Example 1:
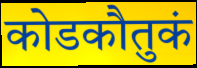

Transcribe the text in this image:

कोडकौतुकं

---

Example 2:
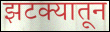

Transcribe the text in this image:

झटक्यातून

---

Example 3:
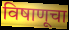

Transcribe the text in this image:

विषाणूचा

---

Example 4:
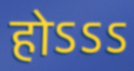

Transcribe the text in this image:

होऽऽऽ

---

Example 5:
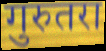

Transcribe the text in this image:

गुरुतरा